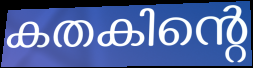
കതകിന്റെ